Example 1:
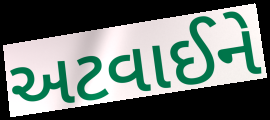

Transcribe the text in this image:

અટવાઈને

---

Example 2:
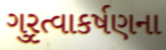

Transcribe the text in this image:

ગુરૃત્વાકર્ષણના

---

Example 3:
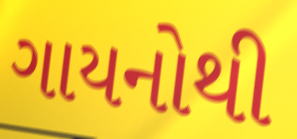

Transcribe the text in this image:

ગાયનોથી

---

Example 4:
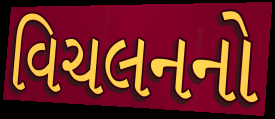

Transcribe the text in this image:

વિચલનનો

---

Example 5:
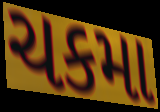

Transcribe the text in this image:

ચકમા